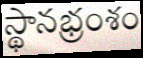
స్థానభ్రంశం